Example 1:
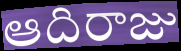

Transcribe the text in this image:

ఆదిరాజు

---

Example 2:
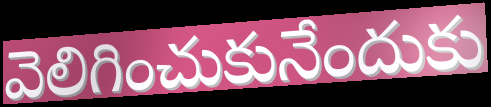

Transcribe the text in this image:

వెలిగించుకునేందుకు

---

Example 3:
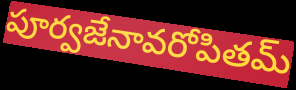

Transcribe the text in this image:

పూర్వజేనావరోపితమ్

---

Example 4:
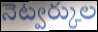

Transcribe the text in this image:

నెట్వర్కుల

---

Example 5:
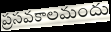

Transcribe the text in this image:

ప్రసవకాలమందు